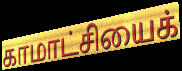
காமாட்சியைக்